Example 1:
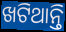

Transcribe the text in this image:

ଖଟିଥାନ୍ତି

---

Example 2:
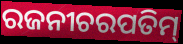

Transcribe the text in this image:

ରଜନୀଚରପତିମ୍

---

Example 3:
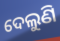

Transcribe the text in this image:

ଦେଲୁଣି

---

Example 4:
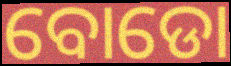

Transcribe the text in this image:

ବୋଡୋ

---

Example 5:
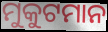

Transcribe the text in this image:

ମୁକୁଟମାନ